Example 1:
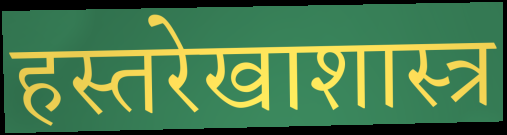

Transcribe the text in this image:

हस्तरेखाशास्त्र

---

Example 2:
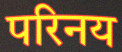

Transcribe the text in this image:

परिनय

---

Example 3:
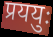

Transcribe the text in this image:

प्रययुः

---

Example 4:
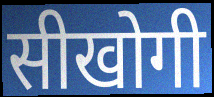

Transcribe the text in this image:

सीखोगी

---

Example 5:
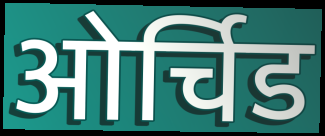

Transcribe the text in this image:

ओर्चिड